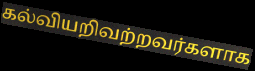
கல்வியறிவற்றவர்களாக